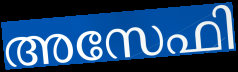
അസേഫി